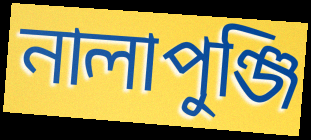
নালাপুঞ্জি